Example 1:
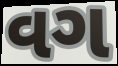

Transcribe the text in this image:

વગ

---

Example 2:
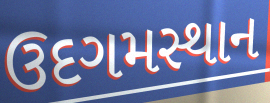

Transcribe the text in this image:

ઉદગમસ્થાન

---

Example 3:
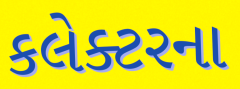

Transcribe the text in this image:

કલેક્ટરના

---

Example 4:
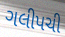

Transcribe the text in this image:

ગલીપચી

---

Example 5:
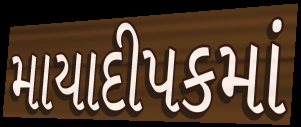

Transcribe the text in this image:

માયાદીપકમાં